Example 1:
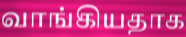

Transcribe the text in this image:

வாங்கியதாக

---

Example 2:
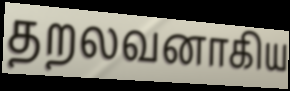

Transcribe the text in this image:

தறலவனாகிய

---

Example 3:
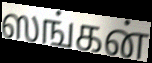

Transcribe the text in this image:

ஸங்கன்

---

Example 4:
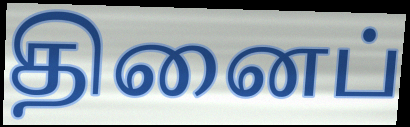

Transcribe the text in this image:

தினைப்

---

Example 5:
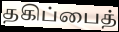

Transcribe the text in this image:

தகிப்பைத்